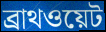
ব্রাথওয়েট